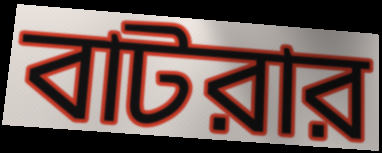
বাটরার